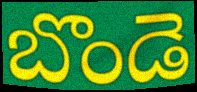
బొండె